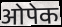
ओपेक